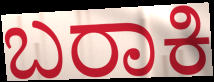
ಬರಾಕಿ